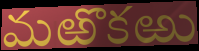
మఱొకఱు